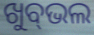
ଖୁବ୍‌ଭଲ